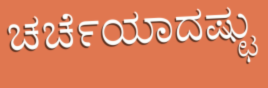
ಚರ್ಚೆಯಾದಷ್ಟು